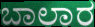
ಬಾಲಾರ